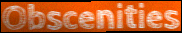
Obscenities